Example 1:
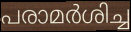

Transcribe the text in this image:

പരാമർശിച്ച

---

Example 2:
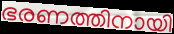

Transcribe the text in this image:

ഭരണത്തിനായി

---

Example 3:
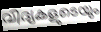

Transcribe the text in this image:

വിദ്യകളുടെയും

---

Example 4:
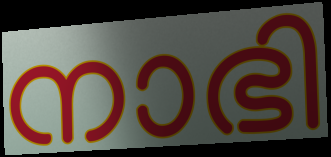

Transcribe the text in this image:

നാഭി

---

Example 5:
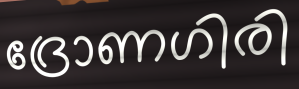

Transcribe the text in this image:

ദ്രോണഗിരി